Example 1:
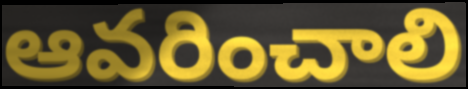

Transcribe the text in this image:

ఆవరించాలి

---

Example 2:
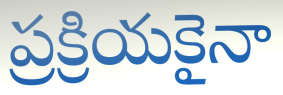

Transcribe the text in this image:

ప్రక్రియకైనా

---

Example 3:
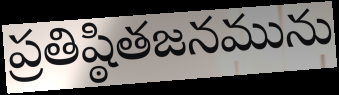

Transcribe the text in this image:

ప్రతిష్ఠితజనమును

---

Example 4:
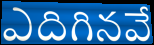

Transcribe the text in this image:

ఎదిగినవే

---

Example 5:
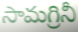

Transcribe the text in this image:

సామగ్రినీ